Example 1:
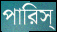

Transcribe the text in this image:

পারিস্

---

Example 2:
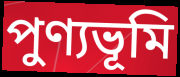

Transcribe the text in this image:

পুণ্যভূমি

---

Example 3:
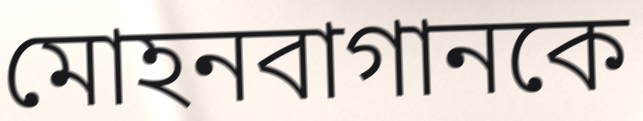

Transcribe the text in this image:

মোহনবাগানকে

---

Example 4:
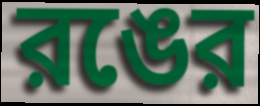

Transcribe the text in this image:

রঙের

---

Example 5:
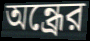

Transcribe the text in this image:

অন্ধ্রের